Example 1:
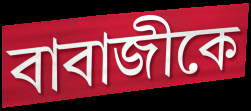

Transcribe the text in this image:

বাবাজীকে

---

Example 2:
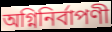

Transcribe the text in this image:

অগ্নিনির্বাপণী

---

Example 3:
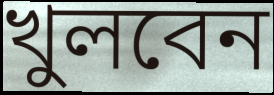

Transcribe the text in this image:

খুলবেন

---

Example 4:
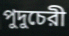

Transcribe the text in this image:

পুদুচেরী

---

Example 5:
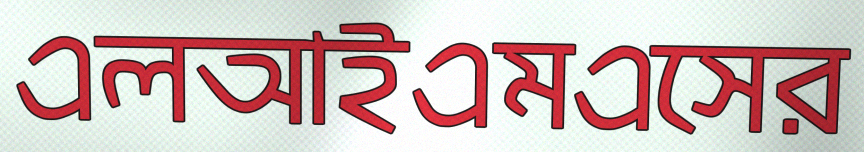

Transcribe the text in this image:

এলআইএমএসের